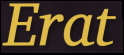
Erat